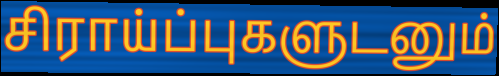
சிராய்ப்புகளுடனும்